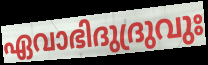
ഏവാഭിദുദ്രുവുഃ